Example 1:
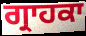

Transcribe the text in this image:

ਗ੍ਰਾਹਕਾ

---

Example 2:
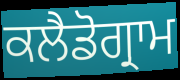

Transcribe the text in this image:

ਕਲੈਡੋਗ੍ਰਾਮ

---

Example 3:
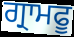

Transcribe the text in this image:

ਗ੍ਰਾਮਫੂ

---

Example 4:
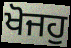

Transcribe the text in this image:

ਖੋਜਹੁ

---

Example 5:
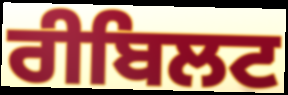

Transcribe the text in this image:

ਰੀਬਿਲਟ